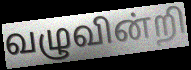
வழுவின்றி